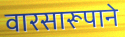
वारसारूपाने